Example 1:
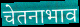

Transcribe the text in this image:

चेतनाभाव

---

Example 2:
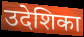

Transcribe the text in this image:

उदेशिका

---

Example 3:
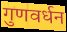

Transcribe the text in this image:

गुणवर्धन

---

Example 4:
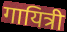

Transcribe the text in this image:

गायित्री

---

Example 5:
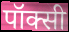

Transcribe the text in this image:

पॉक्सी